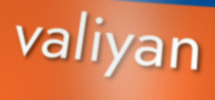
valiyan